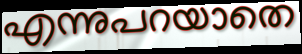
എന്നുപറയാതെ